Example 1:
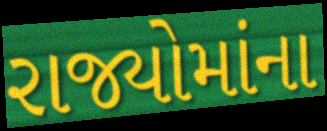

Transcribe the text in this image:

રાજ્યોમાંના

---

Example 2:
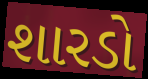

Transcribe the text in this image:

શારડો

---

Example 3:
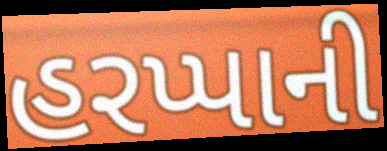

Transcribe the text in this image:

હરપ્પાની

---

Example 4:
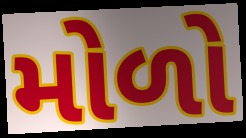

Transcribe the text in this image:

મોળો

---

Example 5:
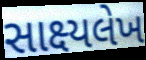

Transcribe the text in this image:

સાક્ષ્યલેખ